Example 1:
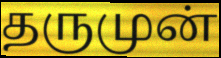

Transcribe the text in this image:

தருமுன்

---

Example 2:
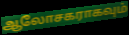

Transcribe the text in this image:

ஆலோசகராகவும்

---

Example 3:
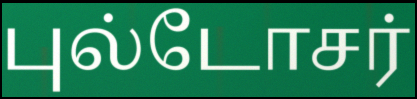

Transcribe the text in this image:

புல்டோசர்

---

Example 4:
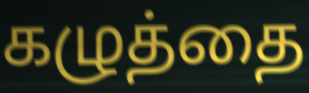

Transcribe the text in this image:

கழுத்தை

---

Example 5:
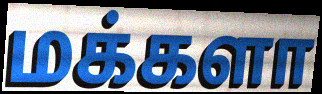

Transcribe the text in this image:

மக்களா